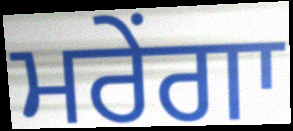
ਮਰੇਂਗਾ